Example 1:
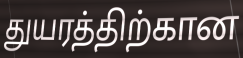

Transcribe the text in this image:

துயரத்திற்கான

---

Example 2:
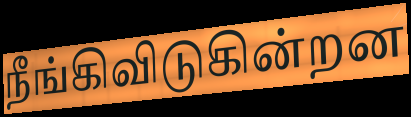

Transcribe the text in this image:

நீங்கிவிடுகின்றன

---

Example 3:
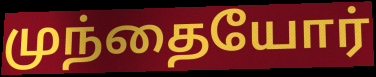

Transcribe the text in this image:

முந்தையோர்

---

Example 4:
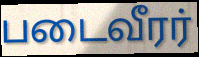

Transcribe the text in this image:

படைவீரர்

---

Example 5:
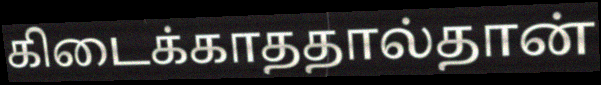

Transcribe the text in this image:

கிடைக்காததால்தான்